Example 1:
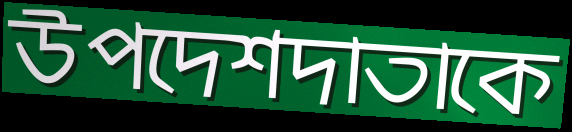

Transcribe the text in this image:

উপদেশদাতাকে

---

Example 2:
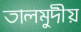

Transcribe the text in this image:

তালমুদীয়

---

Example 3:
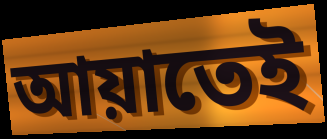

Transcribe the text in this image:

আয়াতেই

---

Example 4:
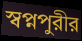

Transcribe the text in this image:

স্বপ্নপুরীর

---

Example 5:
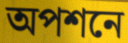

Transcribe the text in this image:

অপশনে